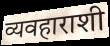
व्यवहाराशी